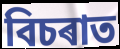
বিচৰাত